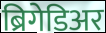
ब्रिगेडिअर